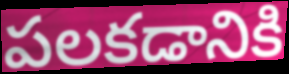
పలకడానికి